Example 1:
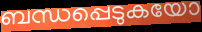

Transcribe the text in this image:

ബന്ധപ്പെടുകയോ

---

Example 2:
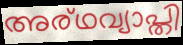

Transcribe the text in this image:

അര്ഥവ്യാപ്തി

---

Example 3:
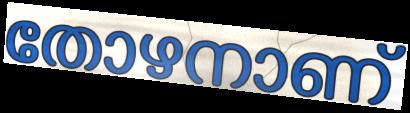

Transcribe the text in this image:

തോഴനാണ്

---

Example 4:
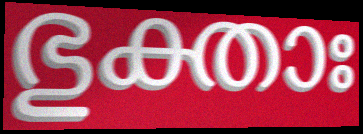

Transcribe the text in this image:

ഭുക്താഃ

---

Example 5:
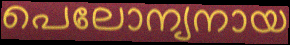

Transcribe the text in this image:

പെലോന്യനായ